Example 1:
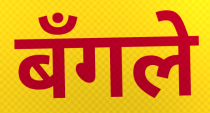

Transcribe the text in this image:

बँगले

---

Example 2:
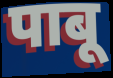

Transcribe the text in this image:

पाबू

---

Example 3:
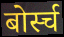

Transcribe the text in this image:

बोर्स्च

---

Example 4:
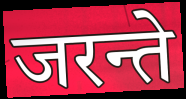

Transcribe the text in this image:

जरन्ते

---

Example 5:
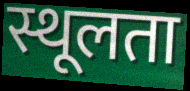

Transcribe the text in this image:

स्थूलता